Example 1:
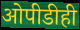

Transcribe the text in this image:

ओपीडीही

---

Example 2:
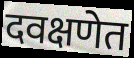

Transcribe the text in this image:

दवक्षणेत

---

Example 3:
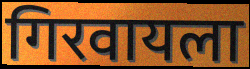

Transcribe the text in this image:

गिरवायला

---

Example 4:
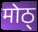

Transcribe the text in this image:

मोठ्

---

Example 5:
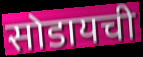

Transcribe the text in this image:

सोडायची